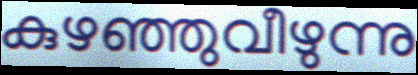
കുഴഞ്ഞുവീഴുന്നു